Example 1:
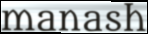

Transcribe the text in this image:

manash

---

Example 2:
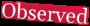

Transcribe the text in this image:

Observed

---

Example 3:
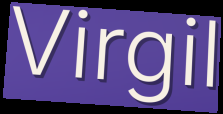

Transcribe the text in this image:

Virgil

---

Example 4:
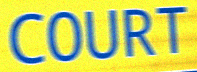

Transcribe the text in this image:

COURT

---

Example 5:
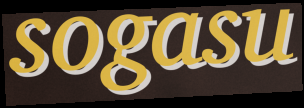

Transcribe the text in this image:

sogasu